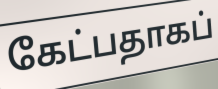
கேட்பதாகப்